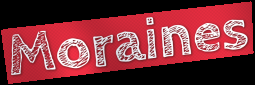
Moraines